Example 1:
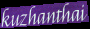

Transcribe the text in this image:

kuzhanthai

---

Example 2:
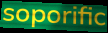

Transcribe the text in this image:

soporific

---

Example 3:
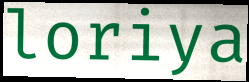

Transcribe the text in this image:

loriya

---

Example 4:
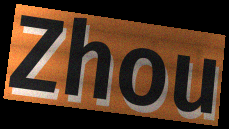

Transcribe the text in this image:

Zhou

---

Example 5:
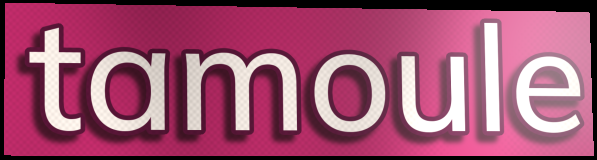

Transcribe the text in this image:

tamoule